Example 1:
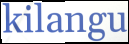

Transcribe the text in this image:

kilangu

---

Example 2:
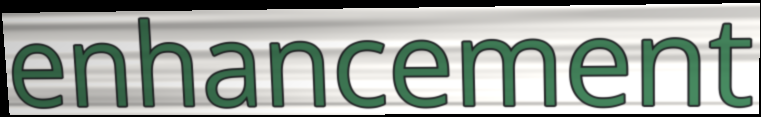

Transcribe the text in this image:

enhancement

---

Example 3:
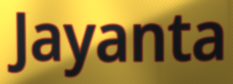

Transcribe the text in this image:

Jayanta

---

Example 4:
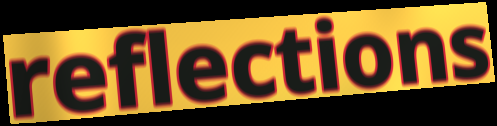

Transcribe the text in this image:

reflections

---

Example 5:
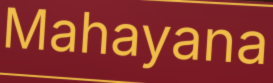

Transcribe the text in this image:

Mahayana